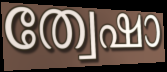
ത്വേഷാ